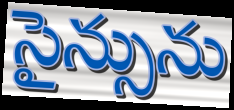
సైన్సును